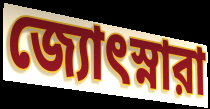
জ্যোৎস্নারা